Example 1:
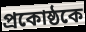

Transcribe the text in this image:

প্রকোষ্ঠকে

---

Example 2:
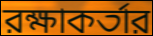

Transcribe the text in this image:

রক্ষাকর্তার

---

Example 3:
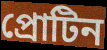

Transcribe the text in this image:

প্রোটিন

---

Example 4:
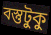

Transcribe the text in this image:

বস্তুটুকু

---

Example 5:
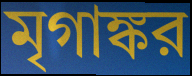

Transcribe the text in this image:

মৃগাঙ্কর